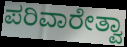
ಪರಿವಾರೇತ್ವಾ